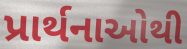
પ્રાર્થનાઓથી